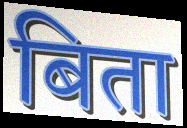
बिता